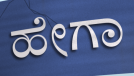
ಹೇಗಾ